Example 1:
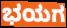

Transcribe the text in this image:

ಭಯಗ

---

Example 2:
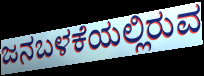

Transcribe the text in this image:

ಜನಬಳಕೆಯಲ್ಲಿರುವ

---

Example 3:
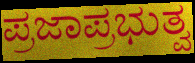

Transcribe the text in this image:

ಪ್ರಜಾಪ್ರಭುತ್ವ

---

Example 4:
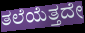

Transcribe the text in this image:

ತಲೆಯೆತ್ತದೇ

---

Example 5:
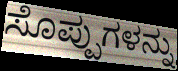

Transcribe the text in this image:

ಸೊಪ್ಪುಗಳನ್ನು